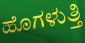
ಹೊಗಳುತ್ತಿ